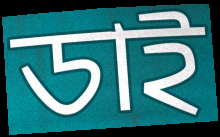
ডাই